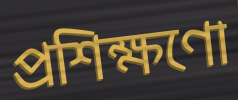
প্ৰশিক্ষণো